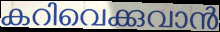
കറിവെക്കുവാൻ